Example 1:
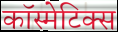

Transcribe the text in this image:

कॉस्मेटिक्स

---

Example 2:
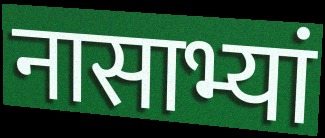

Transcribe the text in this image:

नासाभ्यां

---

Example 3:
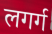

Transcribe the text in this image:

लगर्ग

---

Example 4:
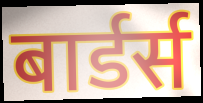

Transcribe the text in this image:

बार्डर्स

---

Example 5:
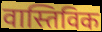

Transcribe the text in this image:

वास्तिविक